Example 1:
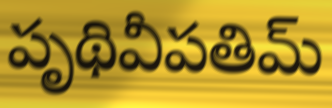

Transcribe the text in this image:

పృథివీపతిమ్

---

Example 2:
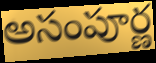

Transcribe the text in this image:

అసంపూర్ణ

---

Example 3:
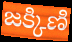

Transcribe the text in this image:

జక్కిణి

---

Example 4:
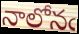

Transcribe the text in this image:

నాలోనఁ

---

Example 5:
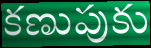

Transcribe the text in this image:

కణుపుకు